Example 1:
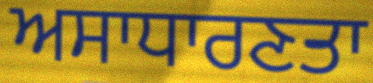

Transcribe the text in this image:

ਅਸਾਧਾਰਣਤਾ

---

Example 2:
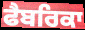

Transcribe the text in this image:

ਫੈਬਰਿਕਾ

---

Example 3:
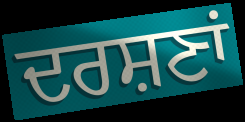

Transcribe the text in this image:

ਦਰਸ਼ਣਾਂ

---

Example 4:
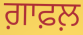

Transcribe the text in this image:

ਗ਼ਾਫ਼ਲ਼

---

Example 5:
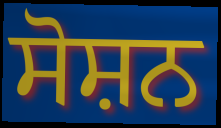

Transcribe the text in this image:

ਸੋਸ਼ਨ